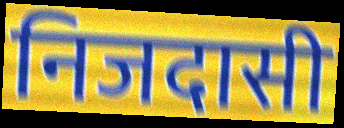
निजदासी